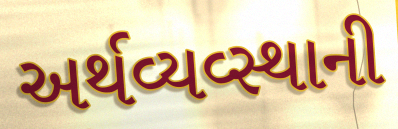
અર્થવ્યવ્સ્થાની